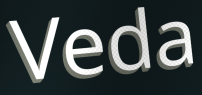
Veda